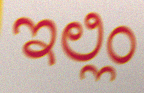
ಇಲ್ಲಿಂ